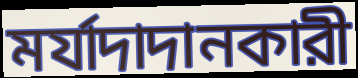
মর্যাদাদানকারী